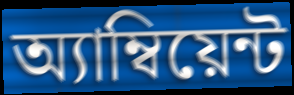
অ্যাম্বিয়েন্ট